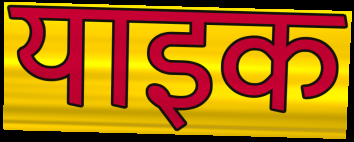
याइक